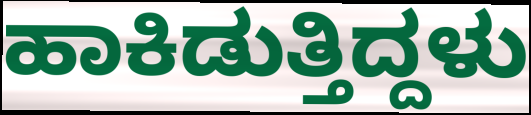
ಹಾಕಿಡುತ್ತಿದ್ದಳು